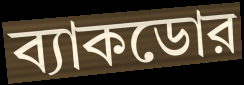
ব্যাকডোর